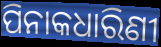
ପିନାକଧାରିଣୀ